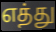
எத்து